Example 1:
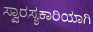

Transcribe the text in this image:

ಸ್ವಾರಸ್ಯಕಾರಿಯಾಗಿ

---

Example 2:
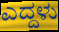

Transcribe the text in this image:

ಎದ್ದಳು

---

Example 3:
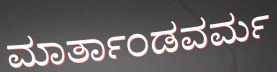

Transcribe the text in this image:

ಮಾರ್ತಾಂಡವರ್ಮ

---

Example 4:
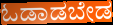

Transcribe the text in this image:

ಓಡಾಡಬೇಡ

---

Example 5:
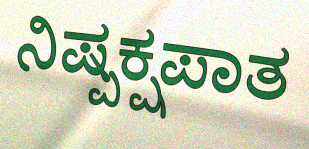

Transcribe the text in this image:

ನಿಷ್ಪಕ್ಷಪಾತ